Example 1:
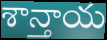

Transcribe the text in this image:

శాన్తాయ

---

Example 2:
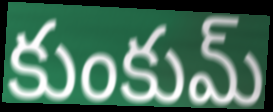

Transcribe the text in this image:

కుంకుమ్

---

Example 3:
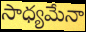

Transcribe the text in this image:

సాధ్యమేనా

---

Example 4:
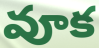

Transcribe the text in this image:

వూక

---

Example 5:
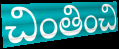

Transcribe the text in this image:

చింతించి